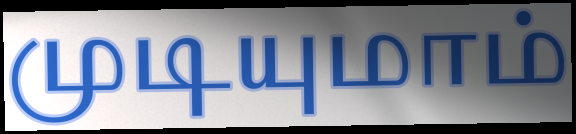
முடியுமாம்